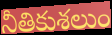
నీతికుశలుం